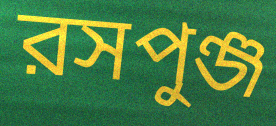
রসপুঞ্জ